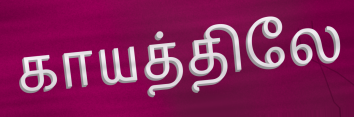
காயத்திலே